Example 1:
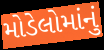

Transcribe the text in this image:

મોડેલોમાંનું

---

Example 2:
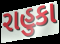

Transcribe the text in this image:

રાહુકા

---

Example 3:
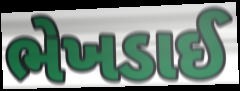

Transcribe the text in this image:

ભેખડાઈ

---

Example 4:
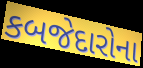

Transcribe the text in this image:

કબજેદારોના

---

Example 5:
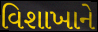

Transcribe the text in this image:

વિશાખાને